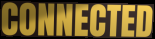
CONNECTED